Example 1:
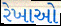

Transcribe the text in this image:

રેખાઓ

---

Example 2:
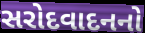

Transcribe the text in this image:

સરોદવાદનનો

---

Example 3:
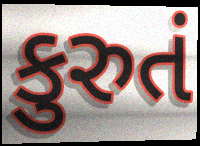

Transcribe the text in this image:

કુરુતં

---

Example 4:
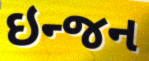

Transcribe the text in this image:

ઇન્જન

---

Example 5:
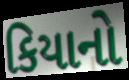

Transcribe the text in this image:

કિયાનો